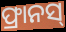
ଫ୍ରାନସ୍